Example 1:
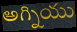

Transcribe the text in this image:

అగ్నియు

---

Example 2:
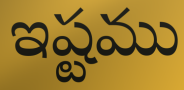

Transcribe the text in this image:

ఇష్టము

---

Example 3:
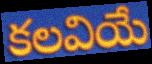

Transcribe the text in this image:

కలవియే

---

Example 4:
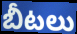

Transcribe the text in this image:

బీటలు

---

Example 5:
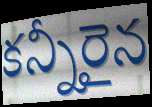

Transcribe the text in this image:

కన్నీరైన